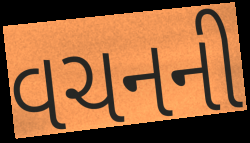
વચનની